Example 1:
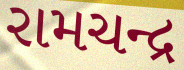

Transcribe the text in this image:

રામચન્દ્ર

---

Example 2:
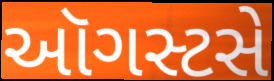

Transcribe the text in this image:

ઑગસ્ટસે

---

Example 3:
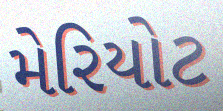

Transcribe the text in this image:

મેરિયોટ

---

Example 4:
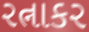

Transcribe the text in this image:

રત્નાકર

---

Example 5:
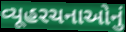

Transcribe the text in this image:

વ્યૂહરચનાઓનું